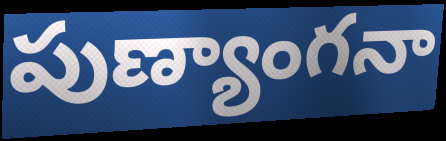
పుణ్యాంగనా